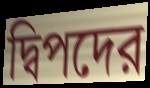
দ্বিপদের